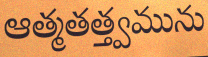
ఆత్మతత్త్వమును